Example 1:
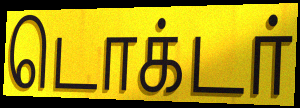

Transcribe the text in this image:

டொக்டர்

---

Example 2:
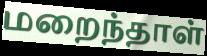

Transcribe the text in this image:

மறைந்தாள்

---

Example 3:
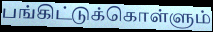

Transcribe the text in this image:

பங்கிட்டுக்கொள்ளும்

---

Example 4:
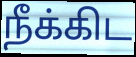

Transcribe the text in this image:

நீக்கிட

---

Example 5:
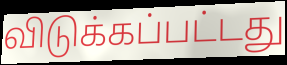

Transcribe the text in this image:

விடுக்கப்பட்டது